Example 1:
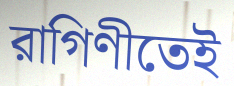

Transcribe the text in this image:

রাগিণীতেই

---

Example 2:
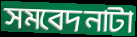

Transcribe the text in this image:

সমবেদনাটা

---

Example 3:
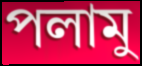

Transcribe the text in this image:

পলামু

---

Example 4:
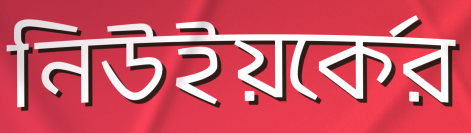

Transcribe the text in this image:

নিউইয়র্কের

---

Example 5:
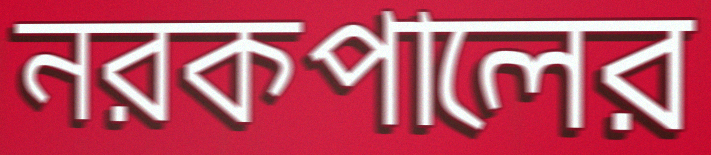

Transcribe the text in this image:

নরকপালের